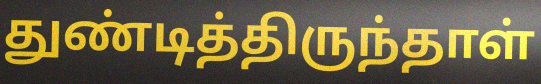
துண்டித்திருந்தாள்